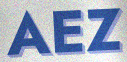
AEZ